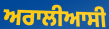
ਅਰਾਲੀਆਸੀ